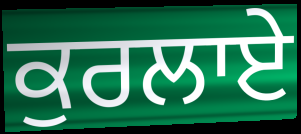
ਕੁਰਲਾਏ